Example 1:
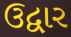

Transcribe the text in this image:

ઉદ્વાર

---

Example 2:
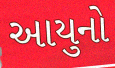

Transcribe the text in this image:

આયુનો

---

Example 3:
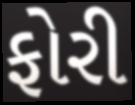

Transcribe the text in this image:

ફોરી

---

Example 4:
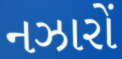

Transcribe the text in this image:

નઝારોં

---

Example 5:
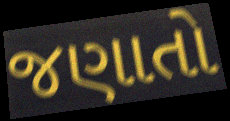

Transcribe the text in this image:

જણાતો